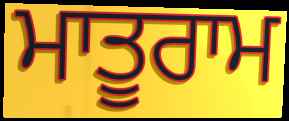
ਮਾਤੂਰਾਮ